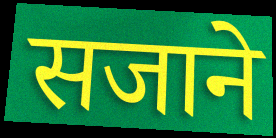
सजाने